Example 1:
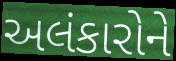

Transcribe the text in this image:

અલંકારોને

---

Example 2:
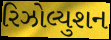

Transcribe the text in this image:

રિઝોલ્યુશન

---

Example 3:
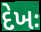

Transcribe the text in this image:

દેખઃ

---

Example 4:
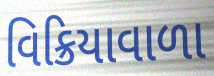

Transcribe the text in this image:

વિક્રિયાવાળા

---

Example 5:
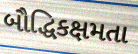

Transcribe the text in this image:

બૌદ્ધિકક્ષમતા